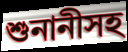
শুনানীসহ